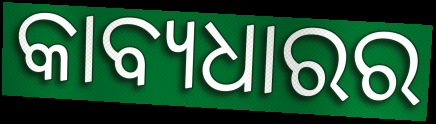
କାବ୍ୟଧାରର